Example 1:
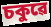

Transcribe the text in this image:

চকুৱে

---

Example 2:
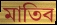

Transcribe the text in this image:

মাতিব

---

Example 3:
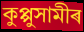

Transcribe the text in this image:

কুপ্পুসামীৰ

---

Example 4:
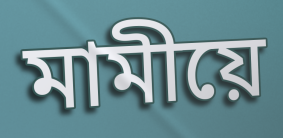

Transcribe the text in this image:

মামীয়ে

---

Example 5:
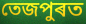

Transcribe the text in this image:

তেজপুৰত